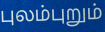
புலம்புறும்